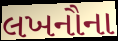
લખનૌના